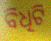
ବିଧିଟି